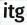
itg